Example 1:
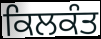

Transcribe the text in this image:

ਕਿਲਕੰਤ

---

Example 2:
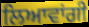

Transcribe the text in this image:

ਲਿਆਵਾਂਗੀ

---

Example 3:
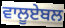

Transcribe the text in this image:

ਵਾਲੂਏਬਲ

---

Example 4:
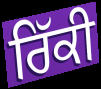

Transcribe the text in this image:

ਰਿੱਕੀ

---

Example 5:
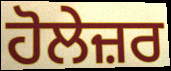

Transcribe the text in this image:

ਹੋਲੇਜ਼ਰ